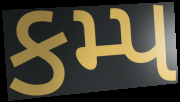
કમ્પ